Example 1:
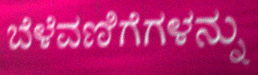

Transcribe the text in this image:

ಬೆಳೆವಣಿಗೆಗಳನ್ನು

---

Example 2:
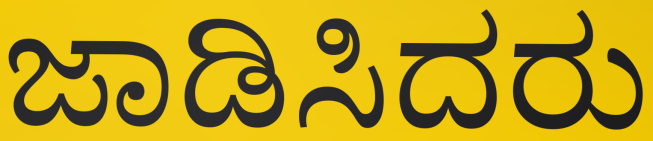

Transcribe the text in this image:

ಜಾಡಿಸಿದರು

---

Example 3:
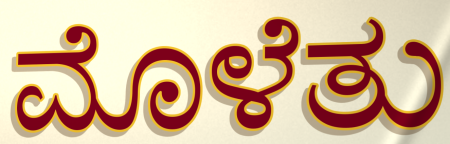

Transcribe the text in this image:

ಮೊಳೆತು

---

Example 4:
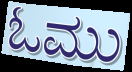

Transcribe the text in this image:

ಓಮು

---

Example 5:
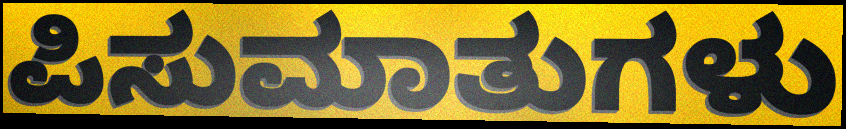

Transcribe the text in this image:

ಪಿಸುಮಾತುಗಳು